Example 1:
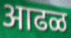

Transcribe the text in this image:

आढळ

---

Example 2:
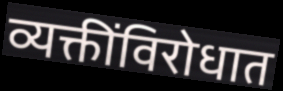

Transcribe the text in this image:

व्यक्तींविरोधात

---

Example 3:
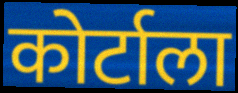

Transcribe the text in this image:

कोर्टाला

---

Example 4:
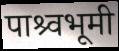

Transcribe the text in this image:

पाश्र्वभूमी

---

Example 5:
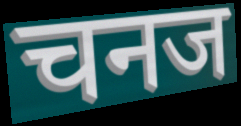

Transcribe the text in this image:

चनज